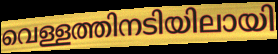
വെള്ളത്തിനടിയിലായി